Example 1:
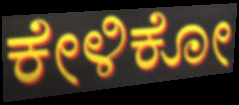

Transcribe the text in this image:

ಕೇಳಿಕೋ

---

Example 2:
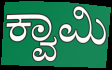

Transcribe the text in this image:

ಕ್ವಾಮಿ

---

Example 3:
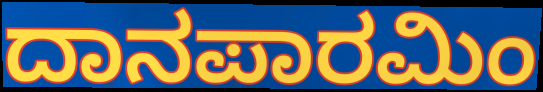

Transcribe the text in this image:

ದಾನಪಾರಮಿಂ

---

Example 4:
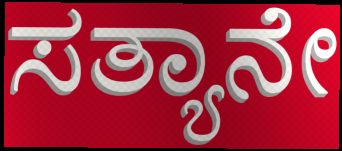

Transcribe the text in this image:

ಸತ್ಯಾನೇ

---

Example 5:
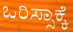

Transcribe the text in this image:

ಒರಿಸ್ಸಾಕ್ಕೆ